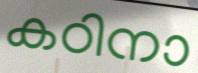
കഠിനാ